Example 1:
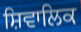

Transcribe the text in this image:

ਸ਼ਿਵਾਲਿਕ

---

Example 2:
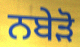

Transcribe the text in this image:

ਨਬੇੜੋ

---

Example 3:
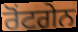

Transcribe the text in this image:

ਰੋਂਟਗੇਨ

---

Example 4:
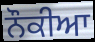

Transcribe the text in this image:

ਨੌਕੀਆ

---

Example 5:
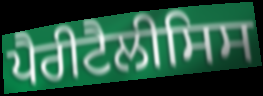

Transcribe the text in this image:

ਪੈਰੀਟੈਲੀਸਿਸ